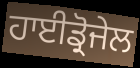
ਹਾਈਡ੍ਰੋਜੇਲ